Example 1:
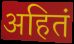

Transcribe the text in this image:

अहितं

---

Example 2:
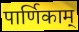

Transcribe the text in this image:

पार्णिकाम्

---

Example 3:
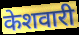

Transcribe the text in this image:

केशवारी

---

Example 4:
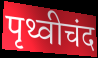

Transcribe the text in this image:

पृथ्वीचंद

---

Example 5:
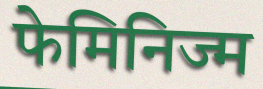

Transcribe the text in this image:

फेमिनिज्‍म